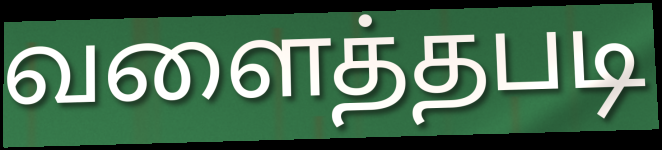
வளைத்தபடி